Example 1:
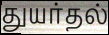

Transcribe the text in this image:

துயர்தல்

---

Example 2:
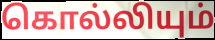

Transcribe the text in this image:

கொல்லியும்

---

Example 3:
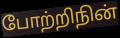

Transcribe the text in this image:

போற்றிநின்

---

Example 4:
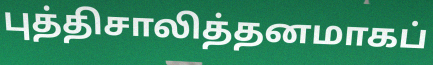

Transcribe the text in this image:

புத்திசாலித்தனமாகப்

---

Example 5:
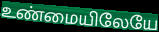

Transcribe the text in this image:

உண்மையிலேயே